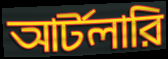
আর্টলারি